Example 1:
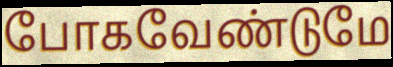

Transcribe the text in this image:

போகவேண்டுமே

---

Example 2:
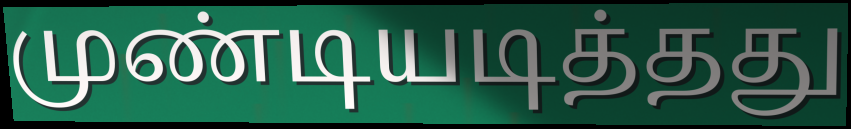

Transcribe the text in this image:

முண்டியடித்தது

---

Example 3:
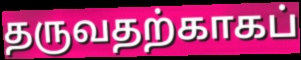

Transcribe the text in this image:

தருவதற்காகப்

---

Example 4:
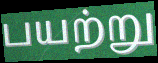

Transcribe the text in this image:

பயற்று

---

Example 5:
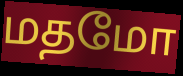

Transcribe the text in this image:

மதமோ